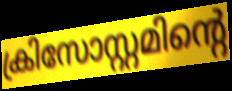
ക്രിസോസ്റ്റമിന്റെ